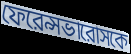
ফেরেন্সভারোসকে